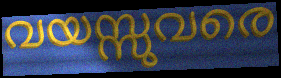
വയസ്സുവരെ